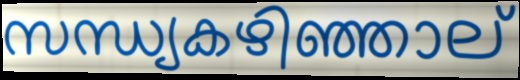
സന്ധ്യകഴിഞ്ഞാല്